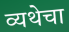
व्यथेचा